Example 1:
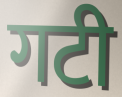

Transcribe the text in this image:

गटी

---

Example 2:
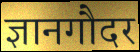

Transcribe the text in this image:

ज्ञानगौदर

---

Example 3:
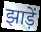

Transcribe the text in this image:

झाड़ें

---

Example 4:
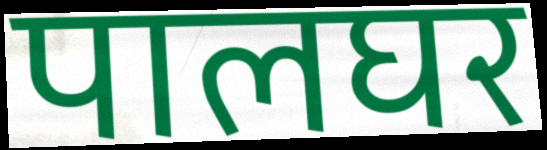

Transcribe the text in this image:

पालघर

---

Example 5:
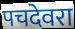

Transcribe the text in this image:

पचदेवरा